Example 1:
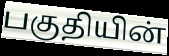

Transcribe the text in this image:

பகுதியின்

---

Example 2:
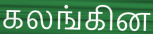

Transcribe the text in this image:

கலங்கின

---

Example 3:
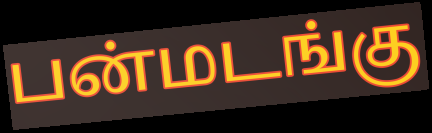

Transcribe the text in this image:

பன்மடங்கு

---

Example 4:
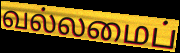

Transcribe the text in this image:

வல்லமைப்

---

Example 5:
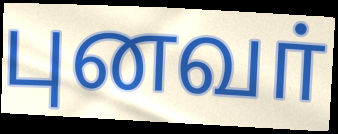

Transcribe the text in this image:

புனவர்